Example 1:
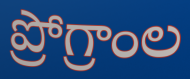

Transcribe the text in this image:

ప్రోగ్రాంల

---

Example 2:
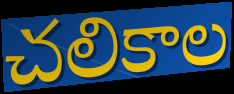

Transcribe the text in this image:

చలికాల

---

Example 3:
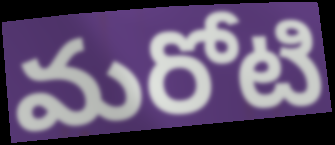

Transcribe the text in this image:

మరోటి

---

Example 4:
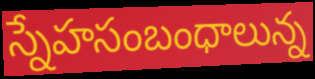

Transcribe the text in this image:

స్నేహసంబంధాలున్న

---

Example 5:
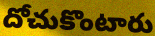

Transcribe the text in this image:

దోచుకొంటారు